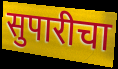
सुपारीचा